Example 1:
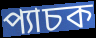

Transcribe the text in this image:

প্যাচক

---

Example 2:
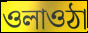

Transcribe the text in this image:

ওলাওঠা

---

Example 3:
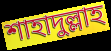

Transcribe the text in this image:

শাহাদুল্লাহ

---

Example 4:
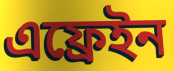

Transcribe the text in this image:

এফ্রেইন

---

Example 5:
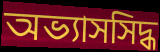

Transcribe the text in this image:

অভ্যাসসিদ্ধ